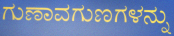
ಗುಣಾವಗುಣಗಳನ್ನು